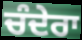
ਚੰਦੇਰਾ